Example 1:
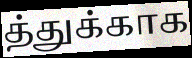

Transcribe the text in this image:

த்துக்காக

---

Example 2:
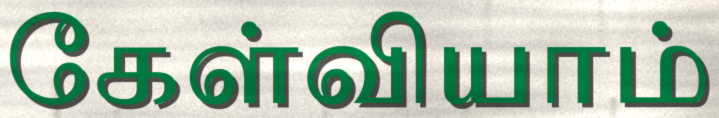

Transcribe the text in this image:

கேள்வியாம்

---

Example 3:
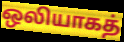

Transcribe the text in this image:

ஒலியாகத்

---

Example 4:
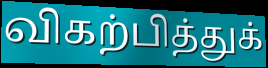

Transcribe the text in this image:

விகற்பித்துக்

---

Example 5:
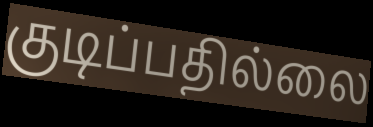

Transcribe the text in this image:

குடிப்பதில்லை